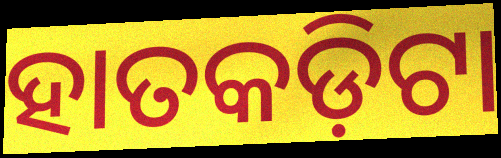
ହାତକଡ଼ିଟା